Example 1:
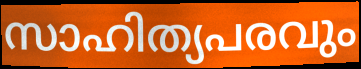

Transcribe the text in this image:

സാഹിത്യപരവും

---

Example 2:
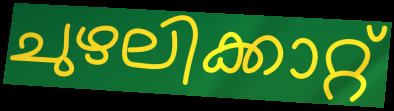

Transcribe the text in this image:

ചുഴലിക്കാറ്റ്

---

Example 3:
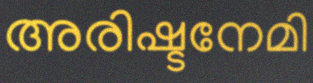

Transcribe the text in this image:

അരിഷ്ടനേമി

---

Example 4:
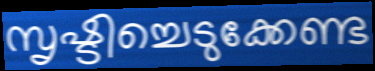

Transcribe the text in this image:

സൃഷ്ടിച്ചെടുക്കേണ്ട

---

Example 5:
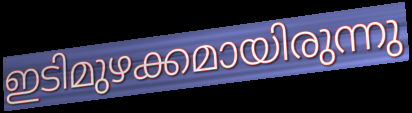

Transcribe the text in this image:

ഇടിമുഴക്കമായിരുന്നു